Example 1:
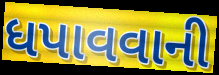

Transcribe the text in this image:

ધપાવવાની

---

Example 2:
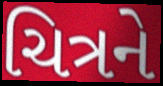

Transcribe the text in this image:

ચિત્રને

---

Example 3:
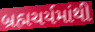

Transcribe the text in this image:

બ્રહ્મચર્યમાંથી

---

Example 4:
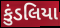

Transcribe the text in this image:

કુંડલિયા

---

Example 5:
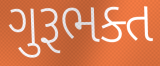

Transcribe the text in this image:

ગુરૂભક્ત